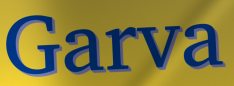
Garva